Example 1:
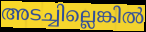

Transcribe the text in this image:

അടച്ചില്ലെങ്കിൽ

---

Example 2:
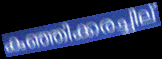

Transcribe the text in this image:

കുഞ്ഞിക്കരച്ചില്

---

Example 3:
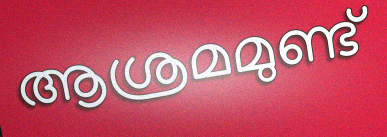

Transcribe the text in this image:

ആശ്രമമുണ്ട്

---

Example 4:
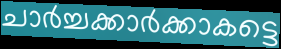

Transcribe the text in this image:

ചാർച്ചക്കാർക്കാകട്ടെ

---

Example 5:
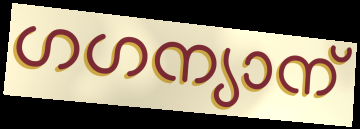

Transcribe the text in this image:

ഗഗന്യാന്